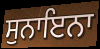
ਸੁਨਾਇਨਾ